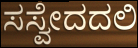
ಸಸ್ವೇದದಲಿ